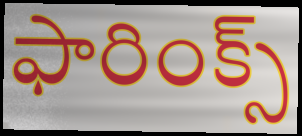
ఫారింక్స్